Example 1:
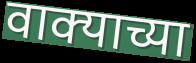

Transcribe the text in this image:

वाक्याच्या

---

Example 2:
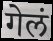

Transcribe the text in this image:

गेलं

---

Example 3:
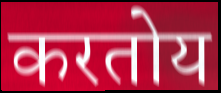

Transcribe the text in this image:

करतोय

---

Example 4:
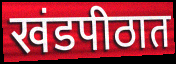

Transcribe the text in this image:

खंडपीठात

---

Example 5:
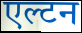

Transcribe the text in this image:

एल्टन